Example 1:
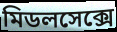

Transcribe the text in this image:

মিডলসেক্সে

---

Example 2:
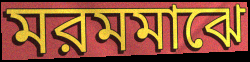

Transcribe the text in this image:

মরমমাঝে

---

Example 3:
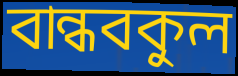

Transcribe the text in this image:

বান্ধবকুল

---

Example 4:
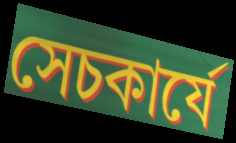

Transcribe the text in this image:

সেচকার্যে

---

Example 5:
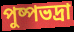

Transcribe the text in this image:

পুষ্পভদ্রা